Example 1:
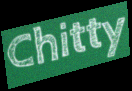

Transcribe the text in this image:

Chitty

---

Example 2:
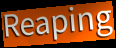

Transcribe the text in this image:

Reaping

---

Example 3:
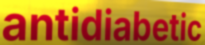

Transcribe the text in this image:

antidiabetic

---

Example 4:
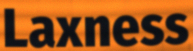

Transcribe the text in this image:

Laxness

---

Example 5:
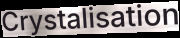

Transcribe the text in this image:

Crystalisation